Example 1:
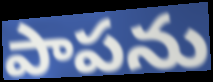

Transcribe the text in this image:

పాపను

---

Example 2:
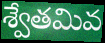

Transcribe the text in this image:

శ్వేతమివ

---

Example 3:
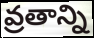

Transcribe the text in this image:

వ్రతాన్ని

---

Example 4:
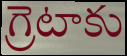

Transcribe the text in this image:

గ్రెటాకు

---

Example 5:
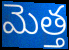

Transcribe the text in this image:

మెత్త